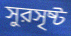
সুরসৃষ্ট